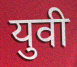
युवी